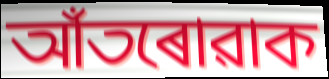
আঁতৰোৱাক